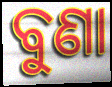
ବୁଣା